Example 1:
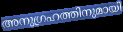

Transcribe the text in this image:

അനുഗ്രഹത്തിനുമായി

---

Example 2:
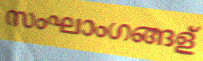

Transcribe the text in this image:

സംഘാംഗങ്ങള്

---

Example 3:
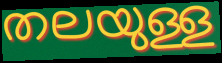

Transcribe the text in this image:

തലയുള്ള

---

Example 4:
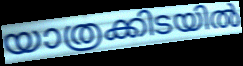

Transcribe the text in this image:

യാത്രക്കിടയിൽ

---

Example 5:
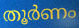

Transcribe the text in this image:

തൂർണം